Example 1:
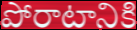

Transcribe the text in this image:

పోరాటానికి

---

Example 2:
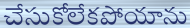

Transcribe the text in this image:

చేసుకోలేకపోయాను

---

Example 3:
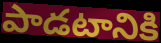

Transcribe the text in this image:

పాడటానికి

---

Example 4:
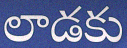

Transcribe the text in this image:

లాడకు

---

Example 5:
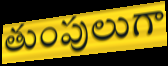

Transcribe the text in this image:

తుంపులుగా